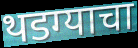
थडग्याचा